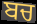
ਬਚ